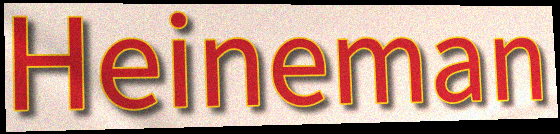
Heineman